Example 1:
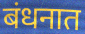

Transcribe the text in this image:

बंधनात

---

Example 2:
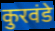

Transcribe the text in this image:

कुरवंडे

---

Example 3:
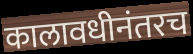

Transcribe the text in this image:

कालावधीनंतरच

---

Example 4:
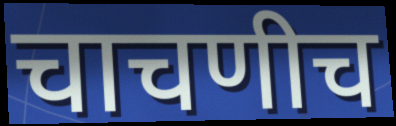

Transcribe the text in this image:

चाचणीच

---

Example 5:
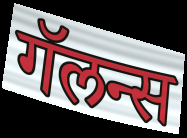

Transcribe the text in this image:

गॅलन्स